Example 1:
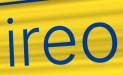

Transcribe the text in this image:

ireo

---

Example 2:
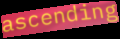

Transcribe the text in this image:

ascending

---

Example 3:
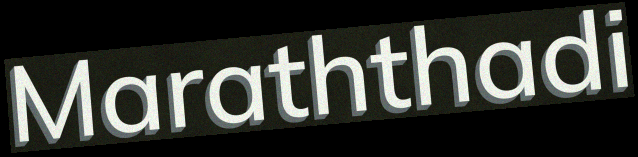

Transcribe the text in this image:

Maraththadi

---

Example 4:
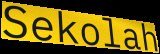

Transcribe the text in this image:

Sekolah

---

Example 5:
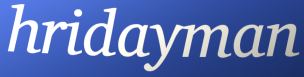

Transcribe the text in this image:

hridayman